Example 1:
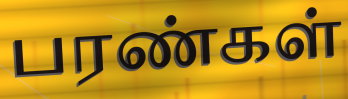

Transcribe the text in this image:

பரண்கள்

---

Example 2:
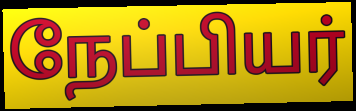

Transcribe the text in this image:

நேப்பியர்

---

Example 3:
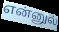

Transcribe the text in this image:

என்னுல்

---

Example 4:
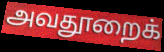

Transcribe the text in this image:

அவதூறைக்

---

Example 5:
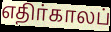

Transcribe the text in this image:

எதிர்காலப்